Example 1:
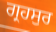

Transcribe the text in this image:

ਗ੍ਰਹਸੁਰ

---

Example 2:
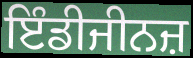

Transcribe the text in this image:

ਇੰਡੀਜੀਨਜ਼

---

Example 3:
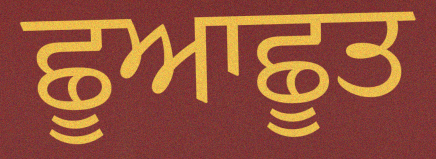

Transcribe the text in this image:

ਛੂਆਛੂਤ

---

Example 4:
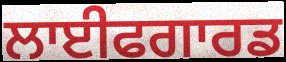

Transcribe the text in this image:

ਲਾਈਫਗਾਰਡ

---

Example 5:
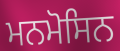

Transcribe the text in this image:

ਮਨਮੋਸਿਨ